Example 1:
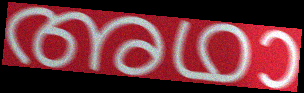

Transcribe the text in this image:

അഥാ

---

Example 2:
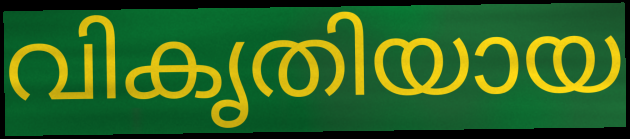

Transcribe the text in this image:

വികൃതിയായ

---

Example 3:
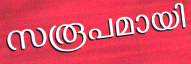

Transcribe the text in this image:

സരൂപമായി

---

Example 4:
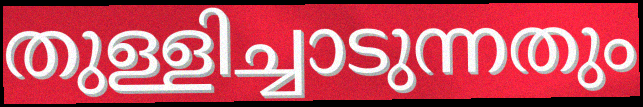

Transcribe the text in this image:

തുള്ളിച്ചാടുന്നതും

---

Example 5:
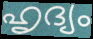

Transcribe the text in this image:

ഹൃദ്യം